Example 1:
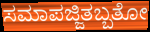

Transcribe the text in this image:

ಸಮಾಪಜ್ಜಿತಬ್ಬತೋ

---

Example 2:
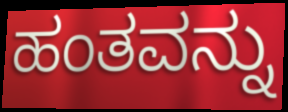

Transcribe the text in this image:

ಹಂತವನ್ನು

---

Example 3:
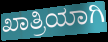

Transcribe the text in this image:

ಖಾತ್ರಿಯಾಗಿ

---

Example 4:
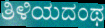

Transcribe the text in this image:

ತಿಳಿಯದಂಥ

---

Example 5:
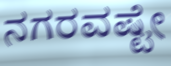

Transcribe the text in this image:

ನಗರವಷ್ಟೇ